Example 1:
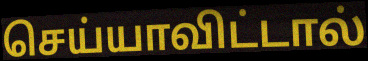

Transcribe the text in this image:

செய்யாவிட்டால்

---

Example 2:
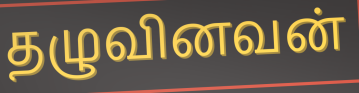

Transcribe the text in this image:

தழுவினவன்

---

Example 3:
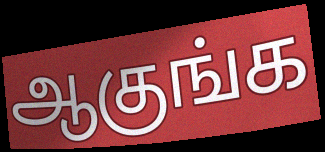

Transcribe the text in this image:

ஆகுங்க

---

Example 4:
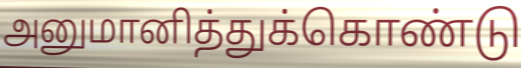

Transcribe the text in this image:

அனுமானித்துக்கொண்டு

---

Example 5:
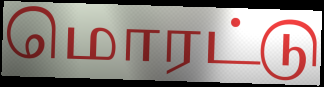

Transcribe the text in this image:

மொரட்டு